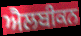
ਐਲਬੀਕਨ